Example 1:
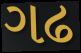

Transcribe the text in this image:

ગઢ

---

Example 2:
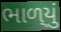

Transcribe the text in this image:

ભાળ્‌યું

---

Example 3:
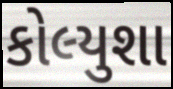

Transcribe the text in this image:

કોલ્યુશા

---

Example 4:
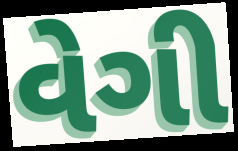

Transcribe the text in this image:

વેગી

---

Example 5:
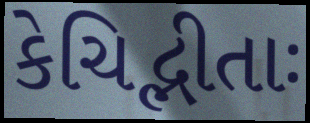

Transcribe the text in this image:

કેચિદ્ભીતાઃ